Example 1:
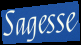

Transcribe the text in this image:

Sagesse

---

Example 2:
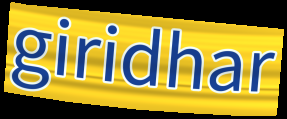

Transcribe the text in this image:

giridhar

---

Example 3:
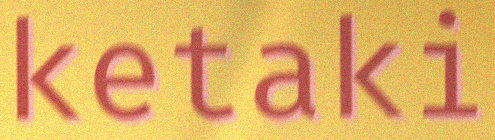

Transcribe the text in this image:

ketaki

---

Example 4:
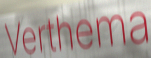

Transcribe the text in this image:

Verthema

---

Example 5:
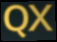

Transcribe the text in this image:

QX